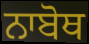
ਨਾਬੋਥ